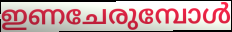
ഇണചേരുമ്പോൾ